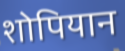
शोपियान